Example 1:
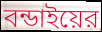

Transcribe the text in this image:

বন্ডাইয়ের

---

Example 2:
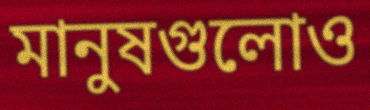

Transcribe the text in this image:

মানুষগুলোও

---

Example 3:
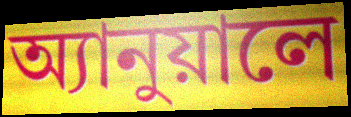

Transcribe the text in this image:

অ্যানুয়ালে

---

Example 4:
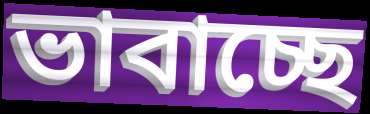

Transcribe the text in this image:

ভাবাচ্ছে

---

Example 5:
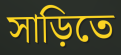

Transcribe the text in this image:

সাড়িতে